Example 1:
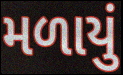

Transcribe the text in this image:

મળાયું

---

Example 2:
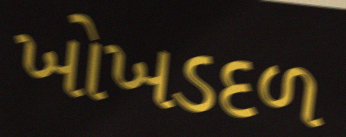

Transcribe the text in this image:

ખોખડદળ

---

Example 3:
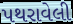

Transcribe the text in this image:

પથરાવેલી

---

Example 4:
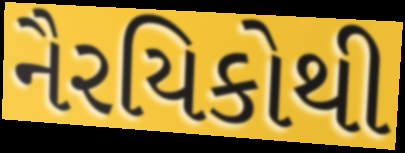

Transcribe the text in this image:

નૈરયિકોથી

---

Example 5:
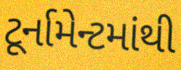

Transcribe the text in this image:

ટૂર્નામેન્ટમાંથી